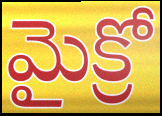
మైక్రో